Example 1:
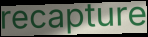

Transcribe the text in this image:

recapture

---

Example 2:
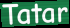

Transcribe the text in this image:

Tatar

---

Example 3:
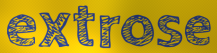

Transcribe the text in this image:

extrose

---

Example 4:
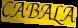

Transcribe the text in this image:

CABALA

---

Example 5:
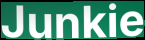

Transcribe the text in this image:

Junkie